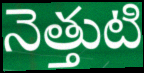
నెత్తుటి